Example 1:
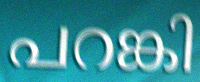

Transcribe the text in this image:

പറങ്കി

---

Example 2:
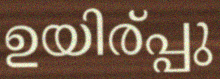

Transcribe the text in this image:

ഉയിര്പ്പു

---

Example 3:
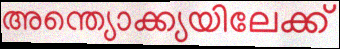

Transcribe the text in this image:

അന്ത്യൊക്ക്യയിലേക്ക്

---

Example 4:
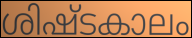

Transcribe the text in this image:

ശിഷ്ടകാലം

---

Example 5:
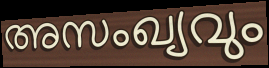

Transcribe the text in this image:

അസംഖ്യവും